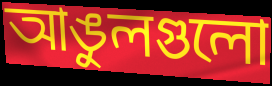
আঙুলগুলো